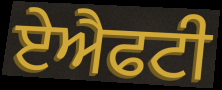
ਏਐਫਟੀ